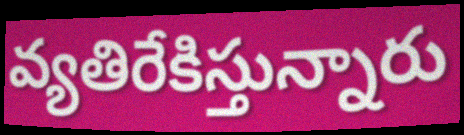
వ్యతిరేకిస్తున్నారు